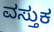
ವಸ್ತುಕ